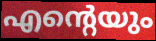
എന്റെയും